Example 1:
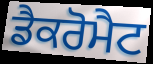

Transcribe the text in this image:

ਡੈਕਰੋਮੈਟ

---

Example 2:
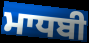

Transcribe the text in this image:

ਮਾਧਬੀ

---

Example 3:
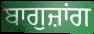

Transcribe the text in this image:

ਬਾਗੁਜ਼ਾਂਗ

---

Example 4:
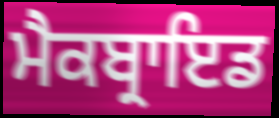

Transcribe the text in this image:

ਮੈਕਬ੍ਰਾਇਡ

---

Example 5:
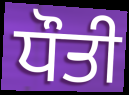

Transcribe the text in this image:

ਧੌਤੀ